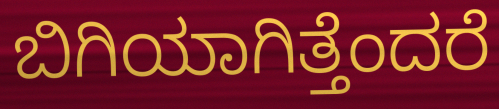
ಬಿಗಿಯಾಗಿತ್ತೆಂದರೆ